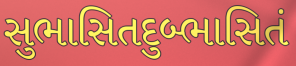
સુભાસિતદુબ્ભાસિતં